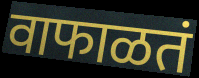
वाफाळतं